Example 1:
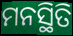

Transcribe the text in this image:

ମନସ୍ଥିତି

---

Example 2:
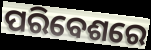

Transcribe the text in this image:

ପରିବେଶରେ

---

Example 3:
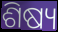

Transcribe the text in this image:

ଶିଷ୍ୟ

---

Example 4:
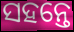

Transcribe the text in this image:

ସହନ୍ତେ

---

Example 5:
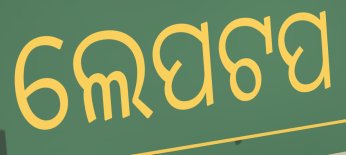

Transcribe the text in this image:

ଲେପଟପ